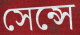
সেন্সে